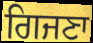
ਗਿਜਣਾ